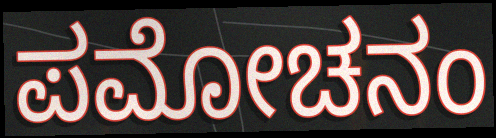
ಪಮೋಚನಂ